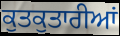
ਕੁਤਕੁਤਾਰੀਆਂ